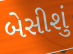
બેસીશું